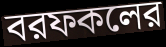
বরফকলের